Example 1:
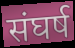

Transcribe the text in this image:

संघर्ष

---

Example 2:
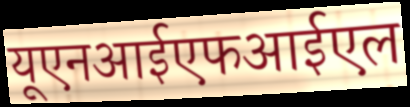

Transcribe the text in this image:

यूएनआईएफआईएल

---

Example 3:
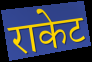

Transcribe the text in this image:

राकेट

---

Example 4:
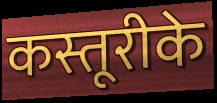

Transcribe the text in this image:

कस्तूरीके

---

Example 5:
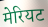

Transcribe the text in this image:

मेरियट